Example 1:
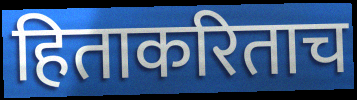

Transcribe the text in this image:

हिताकरिताच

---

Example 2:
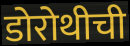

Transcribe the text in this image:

डोरोथीची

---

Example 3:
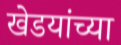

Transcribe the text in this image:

खेडयांच्या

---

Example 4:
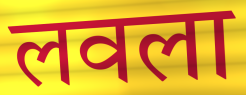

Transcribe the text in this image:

लवला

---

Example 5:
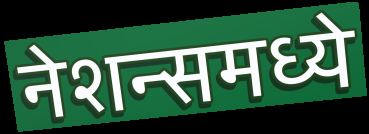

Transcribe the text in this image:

नेशन्समध्ये